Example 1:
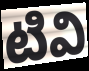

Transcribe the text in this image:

టివి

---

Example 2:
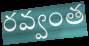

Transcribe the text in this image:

రవ్వంత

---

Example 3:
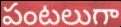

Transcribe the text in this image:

పంటలుగా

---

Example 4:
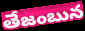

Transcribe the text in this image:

తేజంబున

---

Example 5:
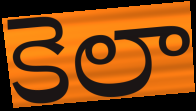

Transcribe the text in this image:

కెలా